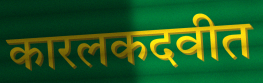
कारलकदवीत